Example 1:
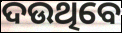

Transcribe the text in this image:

ଦଉଥିବେ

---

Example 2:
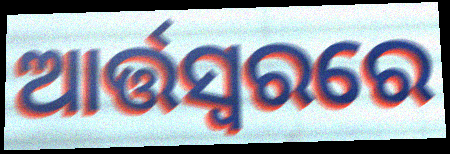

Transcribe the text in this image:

ଆର୍ତ୍ତସ୍ଵରରେ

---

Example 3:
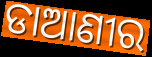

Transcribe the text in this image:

ଡାଆଣୀର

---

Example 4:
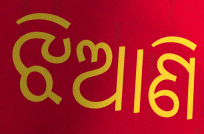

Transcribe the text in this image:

ଝିଆଣି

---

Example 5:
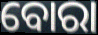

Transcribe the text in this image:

ବୋରା